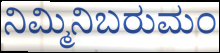
ನಿಮ್ಮಿನಿಬರುಮಂ